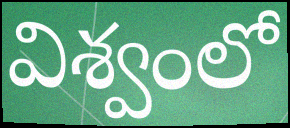
విశ్వంలో